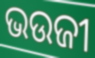
ଭଉଜୀ